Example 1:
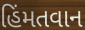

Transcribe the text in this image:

હિંમતવાન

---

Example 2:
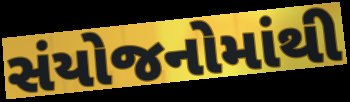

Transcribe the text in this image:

સંયોજનોમાંથી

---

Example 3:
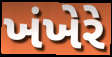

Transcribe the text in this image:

ખંખેરે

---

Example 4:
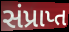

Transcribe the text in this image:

સંપ્રાપ્ત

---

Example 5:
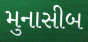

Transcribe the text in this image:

મુનાસીબ